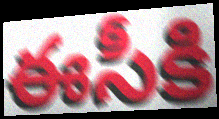
ఈసీకి